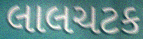
લાલચટક